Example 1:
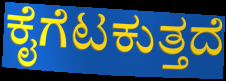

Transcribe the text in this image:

ಕೈಗೆಟಕುತ್ತದೆ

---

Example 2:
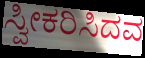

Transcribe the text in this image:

ಸ್ವೀಕರಿಸಿದವ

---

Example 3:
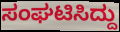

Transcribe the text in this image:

ಸಂಘಟಿಸಿದ್ದು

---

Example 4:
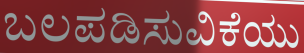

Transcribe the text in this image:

ಬಲಪಡಿಸುವಿಕೆಯು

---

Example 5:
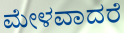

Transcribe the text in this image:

ಮೇಳವಾದರೆ